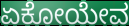
ಏಕೋಯೇವ